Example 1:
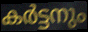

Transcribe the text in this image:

കർട്ടനും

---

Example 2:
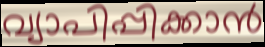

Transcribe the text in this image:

വ്യാപിപ്പിക്കാൻ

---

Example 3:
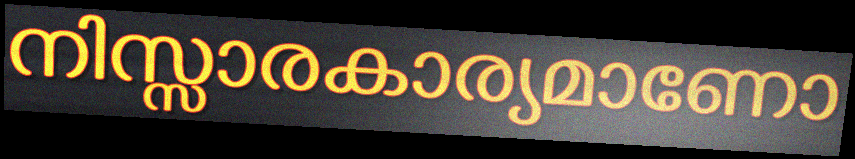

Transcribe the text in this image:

നിസ്സാരകാര്യമാണോ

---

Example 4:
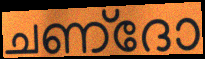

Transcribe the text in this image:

ചണ്ദോ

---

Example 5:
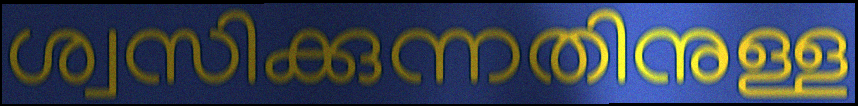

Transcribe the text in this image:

ശ്വസിക്കുന്നതിനുള്ള